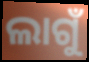
ଲାଗୁଁ